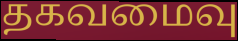
தகவமைவு